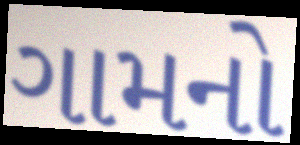
ગામનો